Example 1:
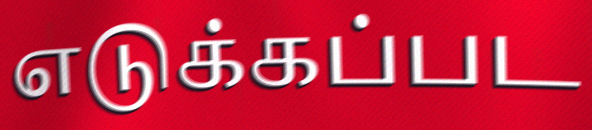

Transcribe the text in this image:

எடுக்கப்பட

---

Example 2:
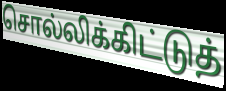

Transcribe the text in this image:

சொல்லிக்கிட்டுத்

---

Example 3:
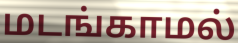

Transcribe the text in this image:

மடங்காமல்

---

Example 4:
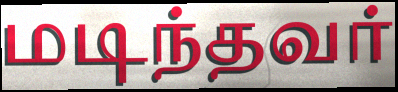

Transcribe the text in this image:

மடிந்தவர்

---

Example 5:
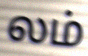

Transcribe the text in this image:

லம்